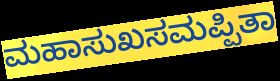
ಮಹಾಸುಖಸಮಪ್ಪಿತಾ